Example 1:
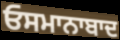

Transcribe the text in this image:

ਓਸਮਾਨਾਬਾਦ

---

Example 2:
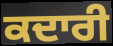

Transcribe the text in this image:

ਕਦਾਰੀ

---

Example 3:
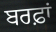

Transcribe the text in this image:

ਬਰਫ਼ਾਂ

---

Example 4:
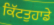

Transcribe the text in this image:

ਕਿੱਟਤੁਹਾਡੇ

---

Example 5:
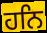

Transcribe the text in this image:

ਹਨਿ